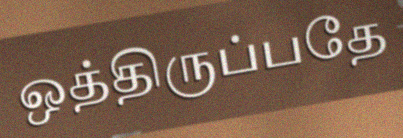
ஒத்திருப்பதே